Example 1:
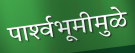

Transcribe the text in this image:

पार्श्‍वभूमीमुळे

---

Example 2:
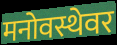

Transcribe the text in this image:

मनोवस्थेवर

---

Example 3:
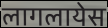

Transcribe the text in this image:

लागलायेस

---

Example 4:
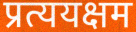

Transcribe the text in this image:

प्रत्ययक्षम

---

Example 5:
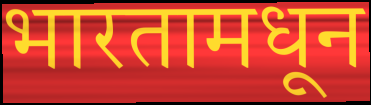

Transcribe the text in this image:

भारतामधून